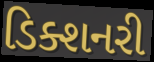
ડિક્શનરી